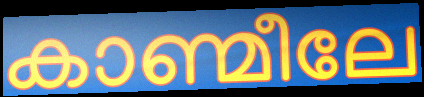
കാണ്മീലേ